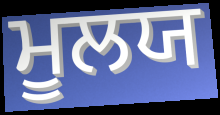
ਮੂਲਯ